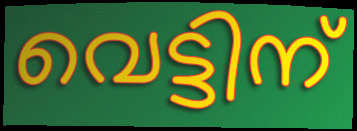
വെട്ടിന്